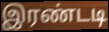
இரண்டடி